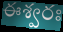
ఈశ్వరః